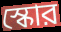
স্কোর